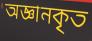
অজ্ঞানকৃত